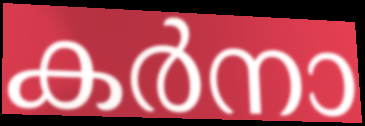
കർനാ